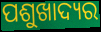
ପଶୁଖାଦ୍ୟର